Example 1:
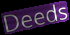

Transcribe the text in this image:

Deeds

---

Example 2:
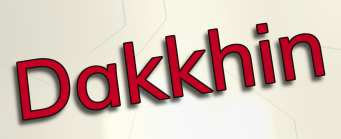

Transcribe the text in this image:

Dakkhin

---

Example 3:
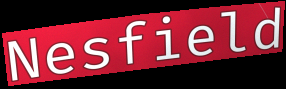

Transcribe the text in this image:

Nesfield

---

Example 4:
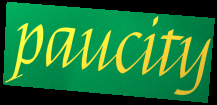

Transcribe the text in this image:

paucity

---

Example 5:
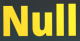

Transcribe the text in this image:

Null